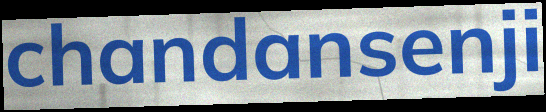
chandansenji